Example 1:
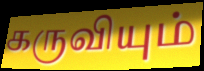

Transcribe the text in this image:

கருவியும்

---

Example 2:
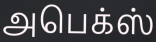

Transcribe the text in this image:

அபெக்ஸ்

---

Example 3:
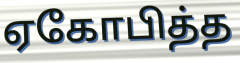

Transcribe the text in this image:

ஏகோபித்த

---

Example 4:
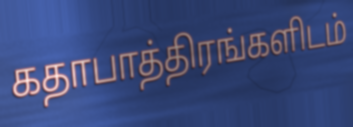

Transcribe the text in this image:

கதாபாத்திரங்களிடம்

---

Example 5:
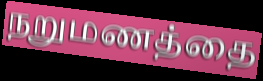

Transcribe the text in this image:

நறுமணத்தை